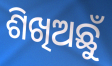
ଶିଖିଅଛୁଁ